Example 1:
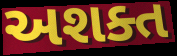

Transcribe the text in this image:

અશક્ત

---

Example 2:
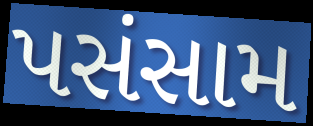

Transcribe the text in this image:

પસંસામ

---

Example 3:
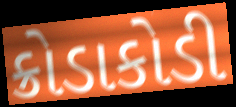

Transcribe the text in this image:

ક્રોડાકોડી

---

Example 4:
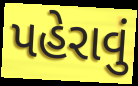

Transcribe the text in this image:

પહેરાવું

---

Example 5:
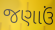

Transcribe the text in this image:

જણાઉં